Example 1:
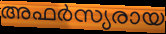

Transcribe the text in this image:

അഫർസ്യരായ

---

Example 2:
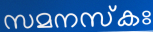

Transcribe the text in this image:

സമനസ്കഃ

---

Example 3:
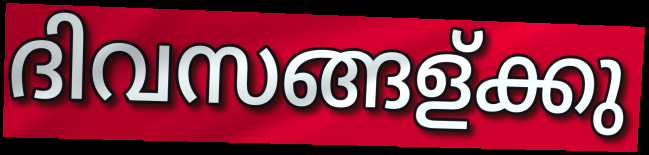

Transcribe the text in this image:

ദിവസങ്ങള്ക്കു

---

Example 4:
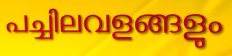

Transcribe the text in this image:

പച്ചിലവളങ്ങളും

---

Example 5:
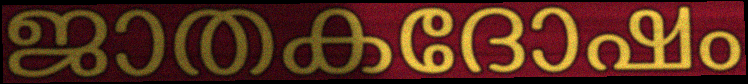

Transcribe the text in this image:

ജാതകദോഷം